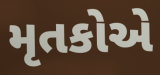
મૃતકોએ